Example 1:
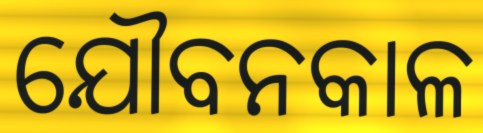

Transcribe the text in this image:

ଯୌବନକାଳ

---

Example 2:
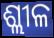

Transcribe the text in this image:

ଶ୍ଲୀଳ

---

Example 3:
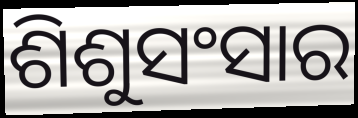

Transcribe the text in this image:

ଶିଶୁସଂସାର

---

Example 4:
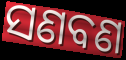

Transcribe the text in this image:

ସଣବଣ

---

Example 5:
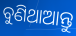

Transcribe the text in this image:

ବୁଣିଥାଆନ୍ତୁ